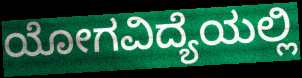
ಯೋಗವಿದ್ಯೆಯಲ್ಲಿ